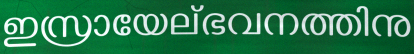
ഇസ്രായേല്ഭവനത്തിനു